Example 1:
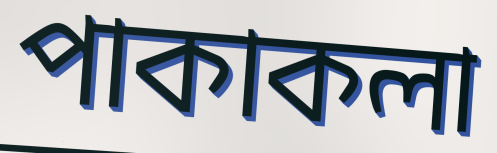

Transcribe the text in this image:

পাকাকলা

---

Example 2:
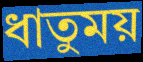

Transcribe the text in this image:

ধাতুময়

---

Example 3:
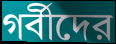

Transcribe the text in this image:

গর্বীদের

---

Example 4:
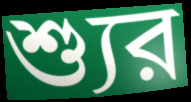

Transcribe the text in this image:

শ্যুর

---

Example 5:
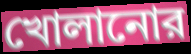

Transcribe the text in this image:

খোলানোর